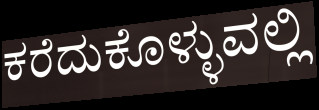
ಕರೆದುಕೊಳ್ಳುವಲ್ಲಿ